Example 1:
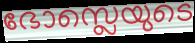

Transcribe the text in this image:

ഭോസ്ലെയുടെ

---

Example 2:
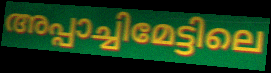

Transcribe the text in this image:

അപ്പാച്ചിമേട്ടിലെ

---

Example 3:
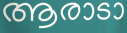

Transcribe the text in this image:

ആരാടാ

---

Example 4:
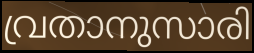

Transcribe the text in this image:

വ്രതാനുസാരി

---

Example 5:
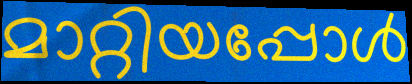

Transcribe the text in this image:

മാറ്റിയപ്പോൾ